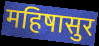
महिषासुर